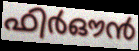
ഫിർഔൻ